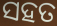
ସହତ